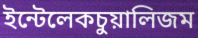
ইন্টেলেকচুয়ালিজম